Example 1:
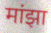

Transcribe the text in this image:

मांझा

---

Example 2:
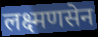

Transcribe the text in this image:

लक्ष्मणसेन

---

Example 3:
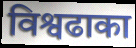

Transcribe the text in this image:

विश्वढाका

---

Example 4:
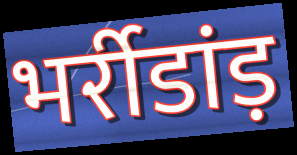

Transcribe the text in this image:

भर्रीडांड़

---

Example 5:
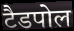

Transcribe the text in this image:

टैडपोल